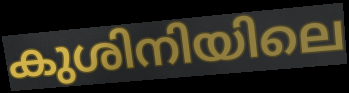
കുശിനിയിലെ